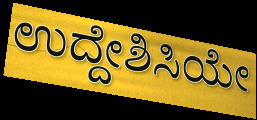
ಉದ್ದೇಶಿಸಿಯೇ